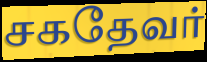
சகதேவர்